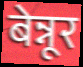
बेन्नूर